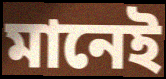
মানেই